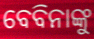
ବେବିନାଙ୍କୁ